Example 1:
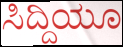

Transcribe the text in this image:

ಸಿದ್ದಿಯೂ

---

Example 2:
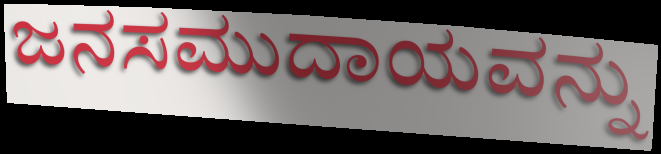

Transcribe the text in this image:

ಜನಸಮುದಾಯವನ್ನು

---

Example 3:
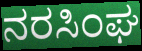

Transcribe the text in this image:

ನರಸಿಂಘ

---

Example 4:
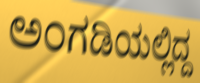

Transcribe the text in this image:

ಅಂಗಡಿಯಲ್ಲಿದ್ದ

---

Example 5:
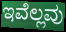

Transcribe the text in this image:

ಇವೆಲ್ಲವು